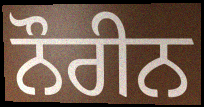
ਨੌਰੀਨ